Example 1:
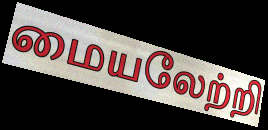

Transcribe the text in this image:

மையலேற்றி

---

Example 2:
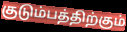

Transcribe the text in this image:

குடும்பத்திற்கும்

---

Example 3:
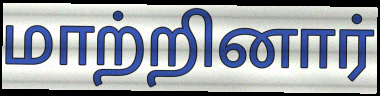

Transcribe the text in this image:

மாற்றினார்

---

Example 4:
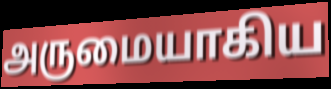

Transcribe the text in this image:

அருமையாகிய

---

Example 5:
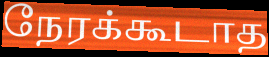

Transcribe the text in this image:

நேரக்கூடாத